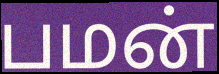
பமன்